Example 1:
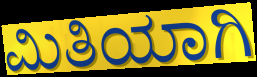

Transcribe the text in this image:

ಮಿತಿಯಾಗಿ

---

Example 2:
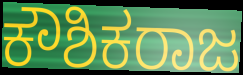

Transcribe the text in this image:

ಕೌಶಿಕರಾಜ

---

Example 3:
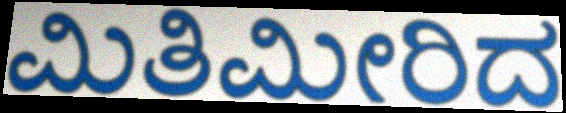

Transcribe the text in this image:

ಮಿತಿಮೀರಿದ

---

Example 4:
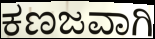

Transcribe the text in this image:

ಕಣಜವಾಗಿ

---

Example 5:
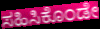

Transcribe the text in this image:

ಸಹಿಸಿಕೊಂಡೇ